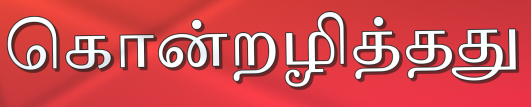
கொன்றழித்தது